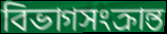
বিভাগসংক্রান্ত